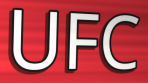
UFC